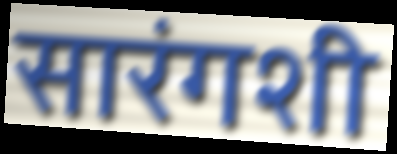
सारंगशी